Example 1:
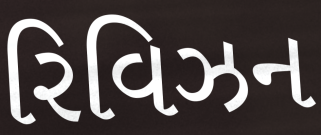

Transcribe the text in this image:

રિવિઝન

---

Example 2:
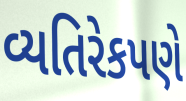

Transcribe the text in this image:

વ્યતિરેકપણે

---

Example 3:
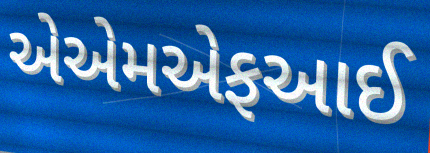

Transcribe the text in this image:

એએમએફઆઈ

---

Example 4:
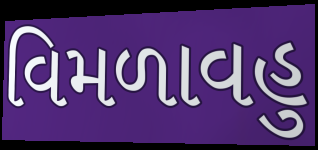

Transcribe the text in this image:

વિમળાવહુ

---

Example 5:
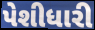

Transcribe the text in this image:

પેશીધારી